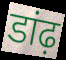
डांढ़